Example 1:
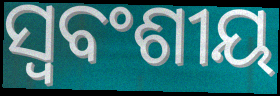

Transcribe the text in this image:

ସ୍ଵବଂଶୀୟ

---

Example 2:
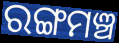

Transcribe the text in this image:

ରଙ୍ଗମଞ୍ଚ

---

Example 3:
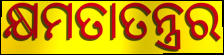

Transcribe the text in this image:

କ୍ଷମତାତନ୍ତ୍ରର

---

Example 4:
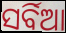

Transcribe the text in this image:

ସର୍ବିଆ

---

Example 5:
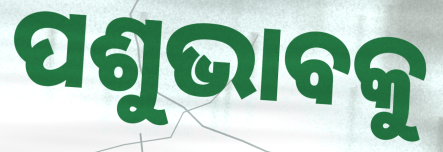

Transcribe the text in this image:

ପଶୁଭାବକୁ